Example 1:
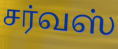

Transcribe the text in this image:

சர்வஸ்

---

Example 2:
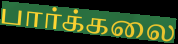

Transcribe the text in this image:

பார்க்கலை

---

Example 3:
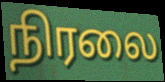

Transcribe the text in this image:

நிரலை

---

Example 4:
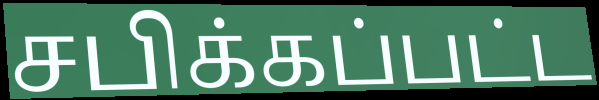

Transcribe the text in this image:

சபிக்கப்பட்ட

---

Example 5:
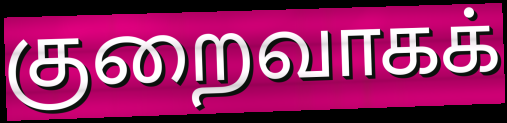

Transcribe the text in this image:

குறைவாகக்